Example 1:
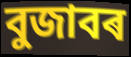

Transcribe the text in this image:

বুজাবৰ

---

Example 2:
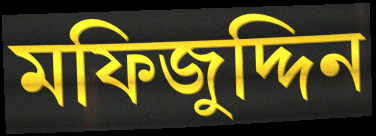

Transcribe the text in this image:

মফিজুদ্দিন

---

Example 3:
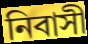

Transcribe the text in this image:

নিবাসী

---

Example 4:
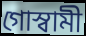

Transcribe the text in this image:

গোস্বামী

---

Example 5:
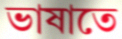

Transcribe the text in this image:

ভাষাতে